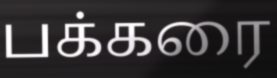
பக்கரை